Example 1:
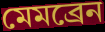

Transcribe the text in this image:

মেমব্ৰেন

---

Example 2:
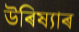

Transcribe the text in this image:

উৰিষ্যাৰ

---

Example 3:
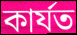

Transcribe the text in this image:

কাৰ্যত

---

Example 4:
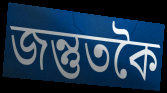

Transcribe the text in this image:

জন্তুতকৈ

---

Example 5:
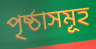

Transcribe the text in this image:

পৃষ্ঠাসমূহ